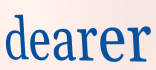
dearer